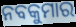
ନବକୁମାର